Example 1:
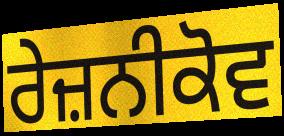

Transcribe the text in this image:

ਰੇਜ਼ਨੀਕੋਵ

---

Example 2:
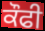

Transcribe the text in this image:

ਕੌਫੀ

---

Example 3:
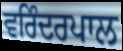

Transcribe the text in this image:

ਵਰਿੰਦਰਪਾਲ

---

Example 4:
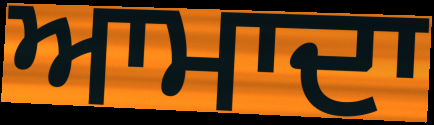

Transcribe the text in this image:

ਆਮਾਦਾ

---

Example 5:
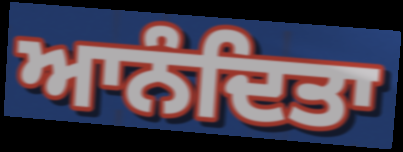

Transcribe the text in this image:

ਆਨੰਦਿਤਾ